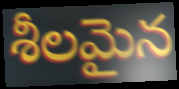
శీలమైన